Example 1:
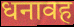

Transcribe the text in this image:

धनावह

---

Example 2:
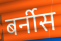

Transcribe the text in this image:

बर्नीस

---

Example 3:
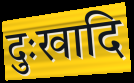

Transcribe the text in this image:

दुःखादि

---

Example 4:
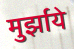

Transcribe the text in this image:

मुर्झाये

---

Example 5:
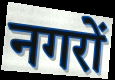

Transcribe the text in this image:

नगरों